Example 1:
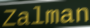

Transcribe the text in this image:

Zalman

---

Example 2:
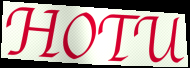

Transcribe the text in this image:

HOTU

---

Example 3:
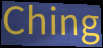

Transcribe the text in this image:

Ching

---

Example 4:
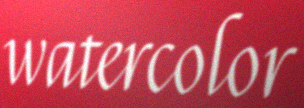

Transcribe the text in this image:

watercolor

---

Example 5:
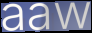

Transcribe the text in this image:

aaw